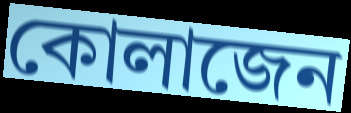
কোলাজেন